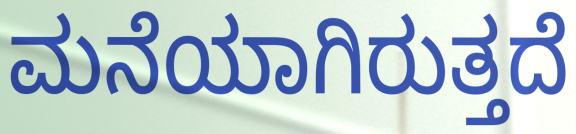
ಮನೆಯಾಗಿರುತ್ತದೆ